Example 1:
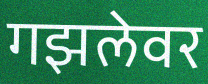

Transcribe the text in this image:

गझलेवर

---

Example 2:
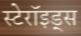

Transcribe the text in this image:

स्टेरॉइड्स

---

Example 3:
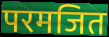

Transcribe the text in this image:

परमजित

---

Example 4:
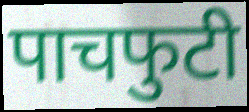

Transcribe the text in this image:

पाचफुटी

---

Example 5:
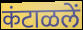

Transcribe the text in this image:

कंटाळलें